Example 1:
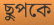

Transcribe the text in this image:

ছুপকে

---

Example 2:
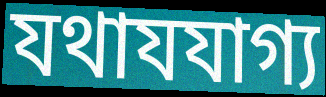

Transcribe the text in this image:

যথাযযাগ্য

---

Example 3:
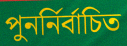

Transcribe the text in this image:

পুনর্নির্বাচিত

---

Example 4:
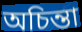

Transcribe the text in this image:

অচিন্তা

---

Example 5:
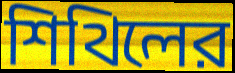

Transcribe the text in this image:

শিথিলের